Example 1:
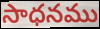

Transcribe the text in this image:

సాధనము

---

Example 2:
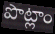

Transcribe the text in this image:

పొట్లాం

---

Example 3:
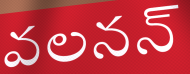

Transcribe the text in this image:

వలనన్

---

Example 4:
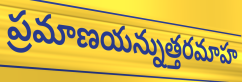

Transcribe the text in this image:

ప్రమాణయన్నుత్తరమాహ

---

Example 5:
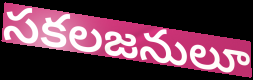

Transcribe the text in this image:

సకలజనులూ